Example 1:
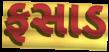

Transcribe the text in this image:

ફસાડ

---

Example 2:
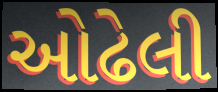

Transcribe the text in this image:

ઓઢેલી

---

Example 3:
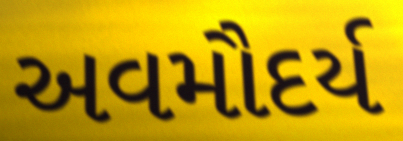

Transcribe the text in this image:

અવમૌદર્ય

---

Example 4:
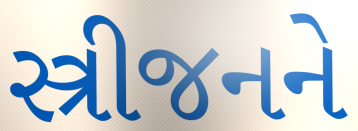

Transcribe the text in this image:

સ્ત્રીજનને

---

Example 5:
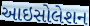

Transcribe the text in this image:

આઇસોલેશન